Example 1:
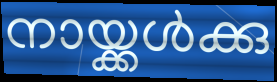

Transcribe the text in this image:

നായ്ക്കൾക്കു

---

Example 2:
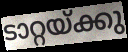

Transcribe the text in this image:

ടാറ്റയ്ക്കു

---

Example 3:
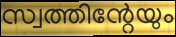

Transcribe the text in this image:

സ്വത്തിന്റേയും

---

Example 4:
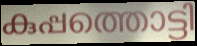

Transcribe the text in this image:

കുപ്പത്തൊട്ടി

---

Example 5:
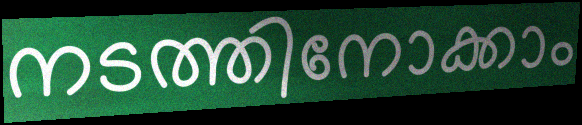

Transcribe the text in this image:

നടത്തിനോക്കാം